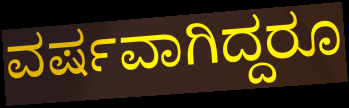
ವರ್ಷವಾಗಿದ್ದರೂ